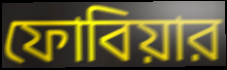
ফোবিয়ার